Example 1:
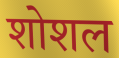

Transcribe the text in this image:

शोशल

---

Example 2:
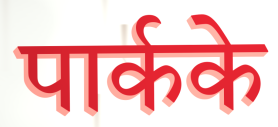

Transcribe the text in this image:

पार्कके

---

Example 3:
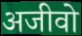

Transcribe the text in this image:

अजीवो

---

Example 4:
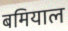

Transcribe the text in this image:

बमियाल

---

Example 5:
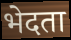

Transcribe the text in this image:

भेदता